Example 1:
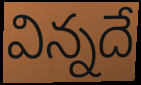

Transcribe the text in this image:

విన్నదే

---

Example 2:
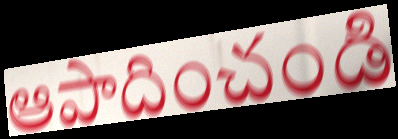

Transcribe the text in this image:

ఆపాదించండి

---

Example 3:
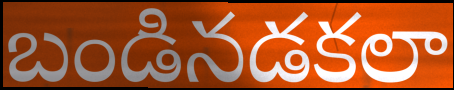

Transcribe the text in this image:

బండినడకలా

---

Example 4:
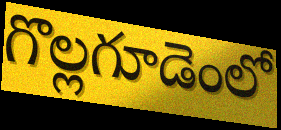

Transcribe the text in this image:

గొల్లగూడెంలో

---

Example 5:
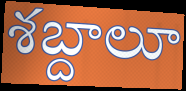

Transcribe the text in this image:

శబ్దాలూ